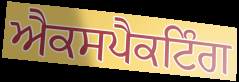
ਐਕਸਪੈਕਟਿੰਗ